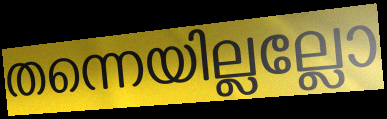
തന്നെയില്ലല്ലോ